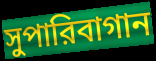
সুপারিবাগান